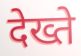
देख्ते